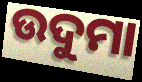
ଉଦୁମା